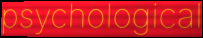
psychological